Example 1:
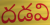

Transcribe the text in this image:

దడవి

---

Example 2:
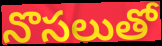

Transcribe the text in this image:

నొసలుతో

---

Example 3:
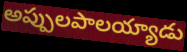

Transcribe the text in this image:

అప్పులపాలయ్యాడు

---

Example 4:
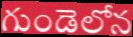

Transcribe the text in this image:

గుండెలోన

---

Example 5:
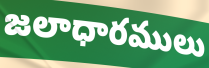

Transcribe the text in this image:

జలాధారములు